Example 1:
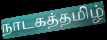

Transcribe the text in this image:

நாடகத்தமிழ்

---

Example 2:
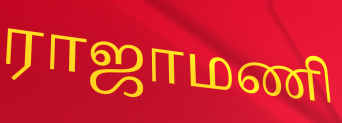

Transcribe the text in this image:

ராஜாமணி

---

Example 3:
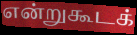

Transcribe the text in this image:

என்றுகூடக்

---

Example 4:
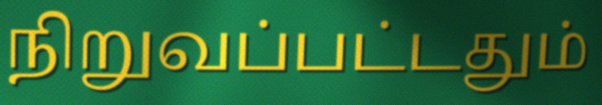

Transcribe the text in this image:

நிறுவப்பட்டதும்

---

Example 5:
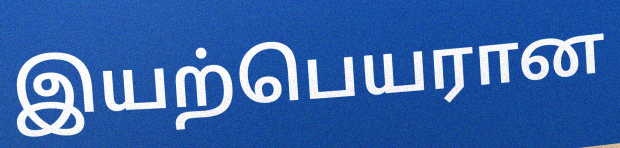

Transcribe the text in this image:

இயற்பெயரான